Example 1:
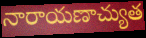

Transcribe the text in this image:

నారాయణాచ్యుత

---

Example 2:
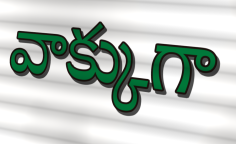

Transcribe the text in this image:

వాక్కుగా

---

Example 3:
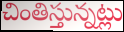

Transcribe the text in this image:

చింతిస్తున్నట్లు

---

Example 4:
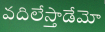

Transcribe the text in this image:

వదిలేస్తాడేమో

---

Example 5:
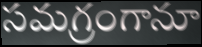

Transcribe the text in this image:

సమగ్రంగానూ